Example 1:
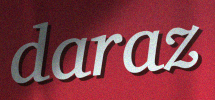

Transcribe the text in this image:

daraz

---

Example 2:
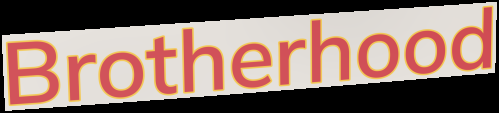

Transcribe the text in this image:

Brotherhood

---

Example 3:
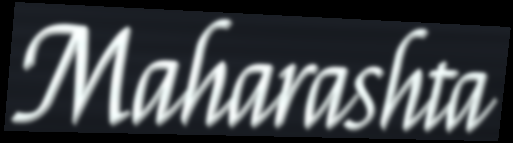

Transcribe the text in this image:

Maharashta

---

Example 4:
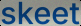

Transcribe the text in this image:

skeet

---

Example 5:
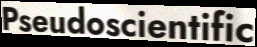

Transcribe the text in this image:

Pseudoscientific